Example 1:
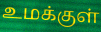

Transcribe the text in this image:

உமக்குள்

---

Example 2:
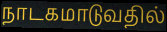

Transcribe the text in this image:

நாடகமாடுவதில்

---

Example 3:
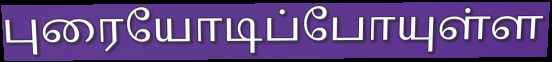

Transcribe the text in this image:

புரையோடிப்போயுள்ள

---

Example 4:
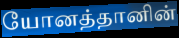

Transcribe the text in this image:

யோனத்தானின்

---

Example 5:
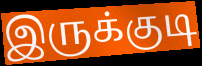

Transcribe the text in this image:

இருக்குடி